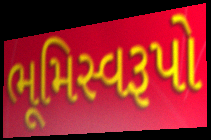
ભૂમિસ્વરૂપો